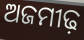
ଅଜମୀଢ଼